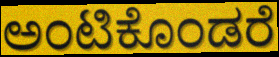
ಅಂಟಿಕೊಂಡರೆ